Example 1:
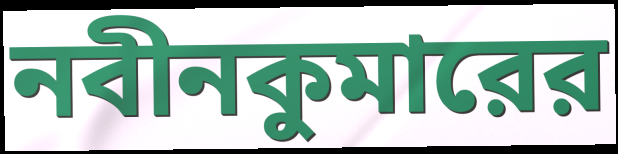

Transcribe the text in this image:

নবীনকুমারের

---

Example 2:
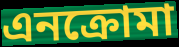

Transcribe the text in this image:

এনক্রোমা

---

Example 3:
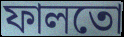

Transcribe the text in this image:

ফালতো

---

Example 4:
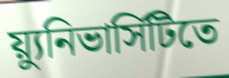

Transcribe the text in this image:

য়্যুনিভার্সিটিতে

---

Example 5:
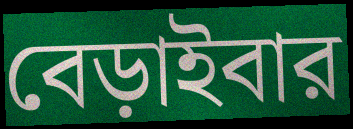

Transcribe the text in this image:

বেড়াইবার